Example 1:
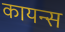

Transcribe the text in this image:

कायन्स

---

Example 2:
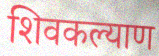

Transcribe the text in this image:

शिवकल्याण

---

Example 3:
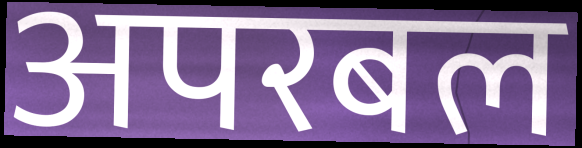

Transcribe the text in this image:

अपरबल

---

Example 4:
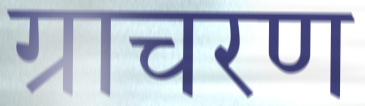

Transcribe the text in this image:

ग्राचरण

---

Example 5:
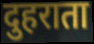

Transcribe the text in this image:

दुहराता